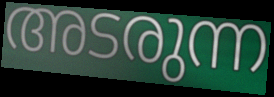
അടരുന്ന